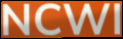
NCWI